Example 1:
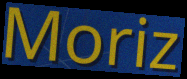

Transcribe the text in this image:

Moriz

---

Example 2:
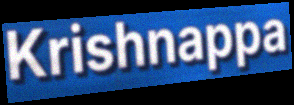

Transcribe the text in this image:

Krishnappa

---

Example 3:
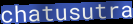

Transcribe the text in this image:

chatusutra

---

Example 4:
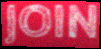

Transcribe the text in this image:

JOIN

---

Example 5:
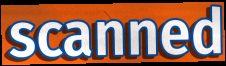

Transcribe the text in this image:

scanned